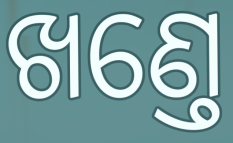
ଖଣ୍ତେ